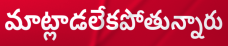
మాట్లాడలేకపోతున్నారు